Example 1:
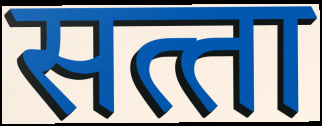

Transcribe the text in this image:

सत्‍ता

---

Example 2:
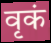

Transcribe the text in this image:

वृकं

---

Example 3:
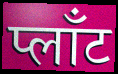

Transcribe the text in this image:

प्लाँट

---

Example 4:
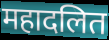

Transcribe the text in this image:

महादलित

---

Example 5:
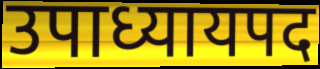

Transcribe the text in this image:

उपाध्यायपद